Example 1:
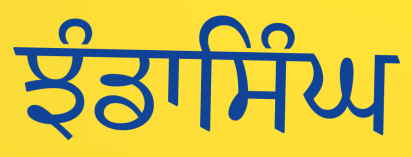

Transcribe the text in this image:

ਝੰਡਾਸਿੰਘ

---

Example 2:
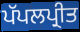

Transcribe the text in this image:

ਪੱਪਲਪ੍ਰੀਤ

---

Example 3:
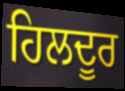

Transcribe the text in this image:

ਹਿਲਦੂਰ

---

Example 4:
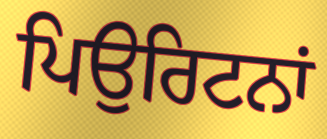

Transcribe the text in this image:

ਪਿਉਰਿਟਨਾਂ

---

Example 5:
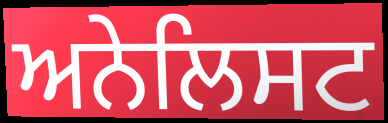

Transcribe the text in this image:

ਅਨੇਲਿਸਟ